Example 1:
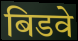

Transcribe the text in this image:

बिडवे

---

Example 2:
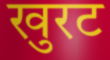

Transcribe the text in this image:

खुरट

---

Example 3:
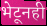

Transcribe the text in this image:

भेटूनही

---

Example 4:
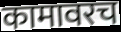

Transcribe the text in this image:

कामावरच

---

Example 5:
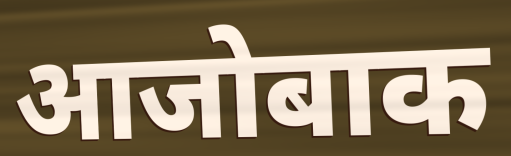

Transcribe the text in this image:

आजोबाक